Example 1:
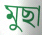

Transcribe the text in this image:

মুছা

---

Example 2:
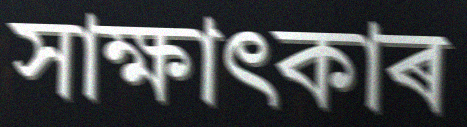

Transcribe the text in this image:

সাক্ষাৎকাৰ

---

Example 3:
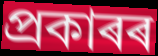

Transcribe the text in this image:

প্ৰকাৰৰ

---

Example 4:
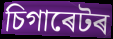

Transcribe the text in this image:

চিগাৰেটৰ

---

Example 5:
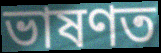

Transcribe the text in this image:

ভাষণত